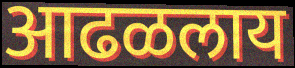
आढळलाय